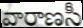
వారాణసీ